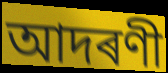
আদৰণী